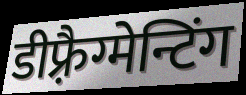
डीफ़्रैग्मेन्टिंग